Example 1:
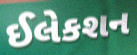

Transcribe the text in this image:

ઈલેકશન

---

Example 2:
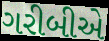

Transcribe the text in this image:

ગરીબીએ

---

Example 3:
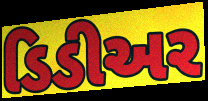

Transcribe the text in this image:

ડિડીઅર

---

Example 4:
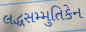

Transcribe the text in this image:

લદ્ધસમ્મુતિકેન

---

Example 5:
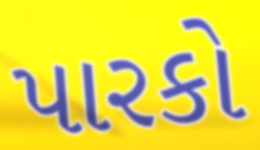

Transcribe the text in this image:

પારકો